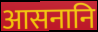
आसनानि